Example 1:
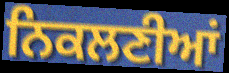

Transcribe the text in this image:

ਨਿਕਲਣੀਆਂ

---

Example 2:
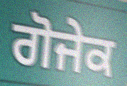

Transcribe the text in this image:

ਗੋਜੇਕ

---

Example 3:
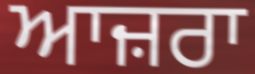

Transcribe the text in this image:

ਆਜ਼ਰਾ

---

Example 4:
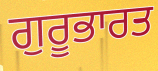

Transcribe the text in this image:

ਗੁਰੂਭਾਰਤ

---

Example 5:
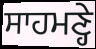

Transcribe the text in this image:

ਸਾਹਮਣ੍ਹੇ